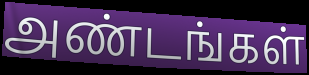
அண்டங்கள்